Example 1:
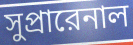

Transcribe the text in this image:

সুপ্রারেনাল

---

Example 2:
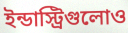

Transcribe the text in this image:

ইন্ডাস্ট্রিগুলোও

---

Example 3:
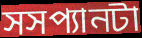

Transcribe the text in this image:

সসপ্যানটা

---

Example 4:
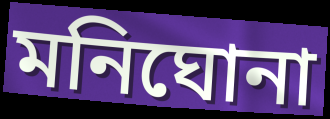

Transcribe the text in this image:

মনিঘোনা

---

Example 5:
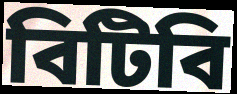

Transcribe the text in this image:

বিটিবি